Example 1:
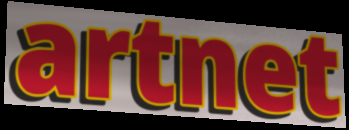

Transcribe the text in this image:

artnet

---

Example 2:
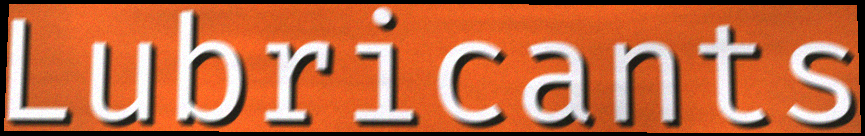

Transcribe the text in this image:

Lubricants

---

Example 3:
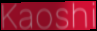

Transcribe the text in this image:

Kaoshi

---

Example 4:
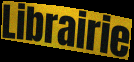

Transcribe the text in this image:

Librairie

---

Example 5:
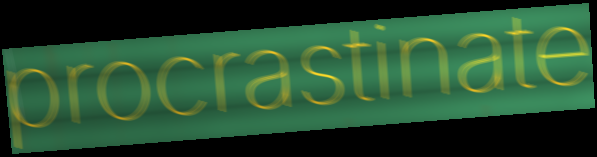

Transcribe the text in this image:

procrastinate